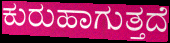
ಕುರುಹಾಗುತ್ತದೆ